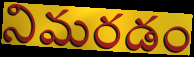
నిమరడం